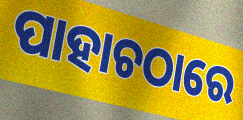
ପାହାଚଠାରେ